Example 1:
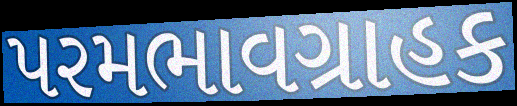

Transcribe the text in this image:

પરમભાવગ્રાહક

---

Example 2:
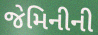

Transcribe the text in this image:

જેમિનીની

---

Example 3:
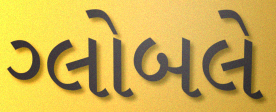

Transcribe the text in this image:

ગ્લોબલે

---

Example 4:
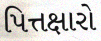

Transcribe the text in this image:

પિત્તક્ષારો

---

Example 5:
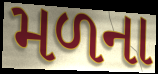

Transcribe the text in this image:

મળના